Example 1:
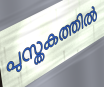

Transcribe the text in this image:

പുസ്തകത്തിൽ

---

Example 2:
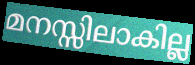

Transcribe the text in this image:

മനസ്സിലാകില്ല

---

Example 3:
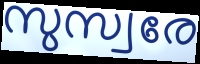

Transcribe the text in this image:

സുസ്വരേ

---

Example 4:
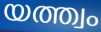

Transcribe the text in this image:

യത്ത്വം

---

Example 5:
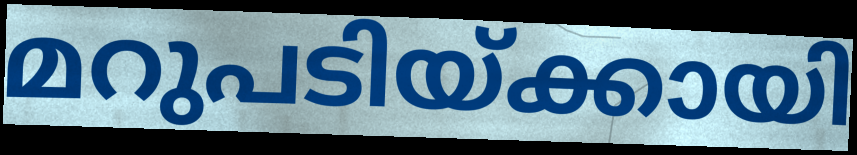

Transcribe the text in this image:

മറുപടിയ്ക്കായി